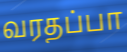
வரதப்பா